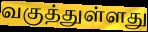
வகுத்துள்ளது